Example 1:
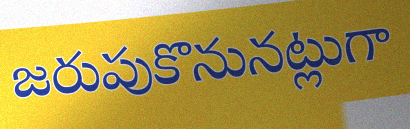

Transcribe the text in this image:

జరుపుకొనునట్లుగా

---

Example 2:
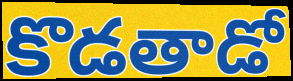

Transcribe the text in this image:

కొడతాడో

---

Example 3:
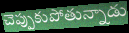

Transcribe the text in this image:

చెప్పుకుపోతున్నాడు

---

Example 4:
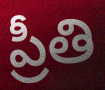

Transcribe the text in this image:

ప్రీతి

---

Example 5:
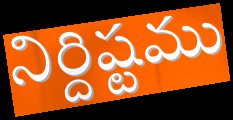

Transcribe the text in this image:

నిర్దిష్టము